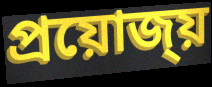
প্ৰয়োজ্য়